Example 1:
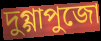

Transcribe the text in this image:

দুগ্গাপুজো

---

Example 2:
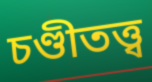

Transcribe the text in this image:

চণ্ডীতত্ত্ব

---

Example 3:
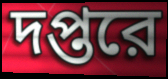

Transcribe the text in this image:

দপ্তরে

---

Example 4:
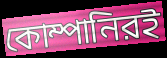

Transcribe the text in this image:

কোম্পানিরই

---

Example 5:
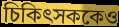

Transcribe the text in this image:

চিকিৎসককেও